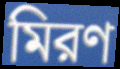
মিরণ